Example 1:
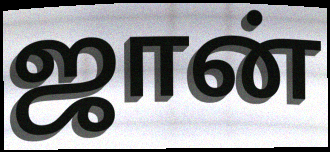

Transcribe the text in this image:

ஜான்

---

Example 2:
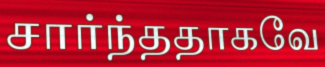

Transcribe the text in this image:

சார்ந்ததாகவே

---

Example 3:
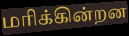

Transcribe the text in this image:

மரிக்கின்றன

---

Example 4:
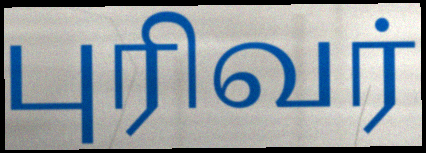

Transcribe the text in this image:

புரிவர்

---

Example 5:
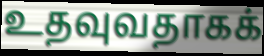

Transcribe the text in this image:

உதவுவதாகக்